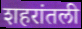
शहरांतली